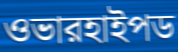
ওভারহাইপড